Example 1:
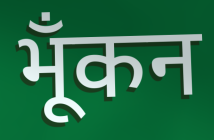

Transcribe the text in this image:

भूँकन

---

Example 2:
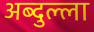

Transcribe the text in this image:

अब्दुल्ला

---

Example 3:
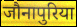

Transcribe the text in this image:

जौनापुरिया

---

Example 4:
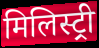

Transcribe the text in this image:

मिलिस्ट्री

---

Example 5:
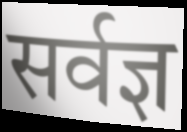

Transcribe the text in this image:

सर्वज्ञ